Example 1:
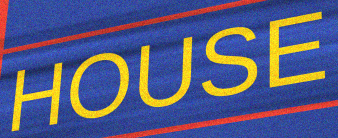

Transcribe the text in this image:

HOUSE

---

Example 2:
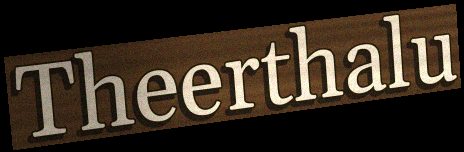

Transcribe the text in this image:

Theerthalu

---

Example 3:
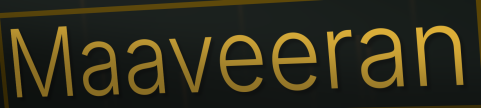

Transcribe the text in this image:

Maaveeran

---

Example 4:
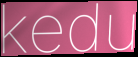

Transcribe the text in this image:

kedu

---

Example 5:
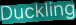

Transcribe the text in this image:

Duckling